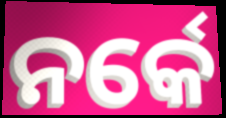
ନର୍କେ